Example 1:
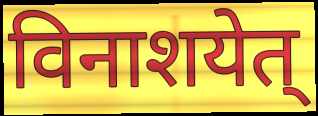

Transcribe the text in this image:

विनाशयेत्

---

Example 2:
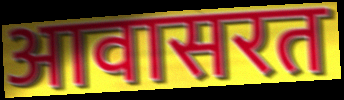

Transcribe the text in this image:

आवासरत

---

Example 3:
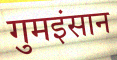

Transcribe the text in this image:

गुमइंसान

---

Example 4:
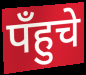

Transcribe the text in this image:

पँहुचे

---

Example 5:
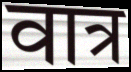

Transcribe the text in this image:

वात्र